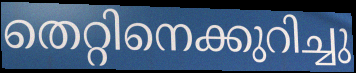
തെറ്റിനെക്കുറിച്ചു